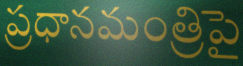
ప్రధానమంత్రిపై